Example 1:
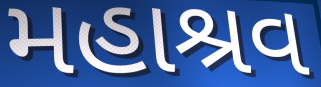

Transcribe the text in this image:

મહાશ્રવ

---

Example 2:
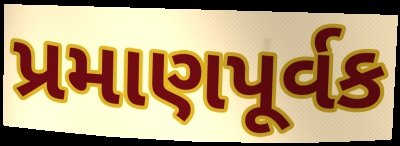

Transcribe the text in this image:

પ્રમાણપૂર્વક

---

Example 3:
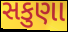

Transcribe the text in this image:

સકુણા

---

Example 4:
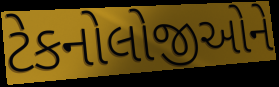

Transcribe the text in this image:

ટેકનોલોજીઓને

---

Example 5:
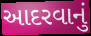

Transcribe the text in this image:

આદરવાનું